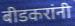
बीडकरांनी